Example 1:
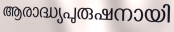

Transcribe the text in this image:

ആരാദ്ധ്യപുരുഷനായി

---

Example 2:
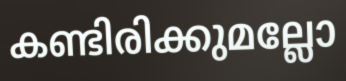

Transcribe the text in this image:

കണ്ടിരിക്കുമല്ലോ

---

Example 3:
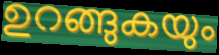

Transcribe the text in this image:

ഉറങ്ങുകയും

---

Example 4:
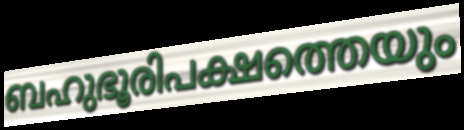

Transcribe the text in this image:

ബഹുഭൂരിപക്ഷത്തെയും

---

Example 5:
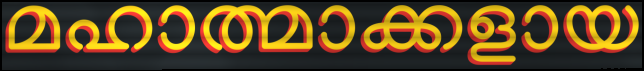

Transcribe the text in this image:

മഹാത്മാക്കളായ